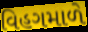
વિહગમાળે